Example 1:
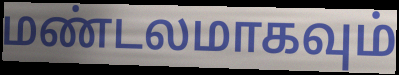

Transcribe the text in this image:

மண்டலமாகவும்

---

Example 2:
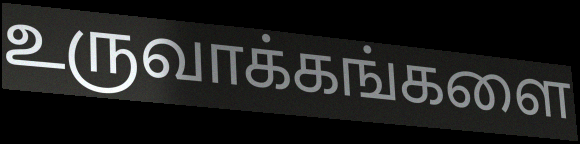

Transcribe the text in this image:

உருவாக்கங்களை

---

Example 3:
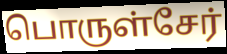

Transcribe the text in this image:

பொருள்சேர்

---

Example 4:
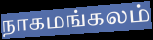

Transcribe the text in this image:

நாகமங்கலம்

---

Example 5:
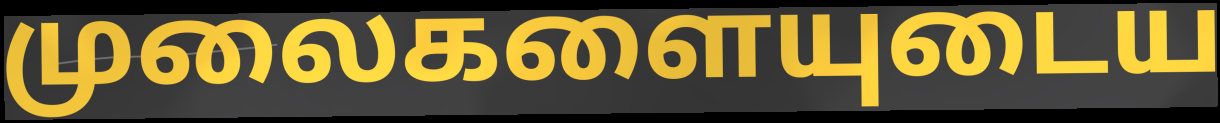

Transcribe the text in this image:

முலைகளையுடைய